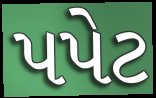
પપેટ